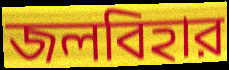
জলবিহার